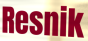
Resnik